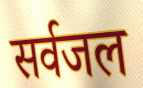
सर्वजल